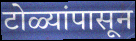
टोळ्यांपासून